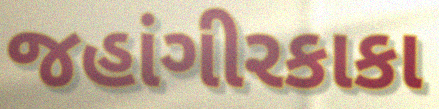
જહાંગીરકાકા